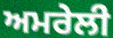
ਅਮਰੇਲੀ